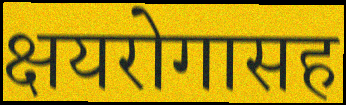
क्षयरोगासह